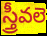
స్త్రీవలె